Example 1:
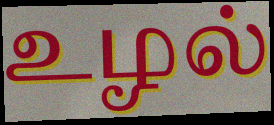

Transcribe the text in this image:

உழல்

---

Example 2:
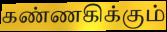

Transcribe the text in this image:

கண்ணகிக்கும்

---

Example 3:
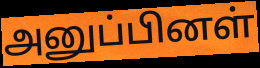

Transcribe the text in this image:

அனுப்பினள்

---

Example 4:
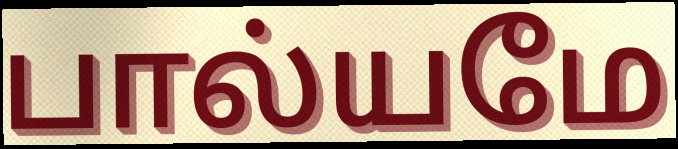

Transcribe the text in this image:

பால்யமே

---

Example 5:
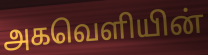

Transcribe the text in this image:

அகவெளியின்